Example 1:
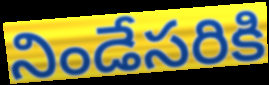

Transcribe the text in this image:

నిండేసరికి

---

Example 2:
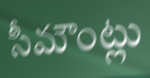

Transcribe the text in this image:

సీమౌంట్లు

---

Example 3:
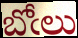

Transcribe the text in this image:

బోఁలు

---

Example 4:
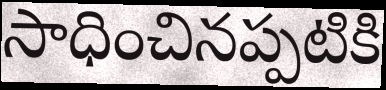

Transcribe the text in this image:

సాధించినప్పటికి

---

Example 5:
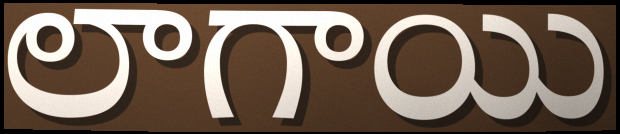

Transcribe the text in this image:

లాగాయి